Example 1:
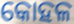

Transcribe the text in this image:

କୋହଳ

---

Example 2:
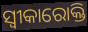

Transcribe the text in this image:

ସ୍ୱୀକାରୋକ୍ତି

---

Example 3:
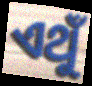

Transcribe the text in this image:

ଏଥୁଁ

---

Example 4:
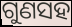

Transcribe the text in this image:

ଗୁଣସହ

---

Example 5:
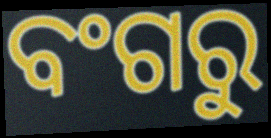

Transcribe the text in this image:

ବଂଗରୁ